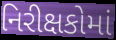
નિરીક્ષકોમાં